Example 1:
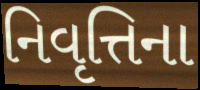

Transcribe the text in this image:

નિવૃત્તિના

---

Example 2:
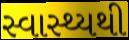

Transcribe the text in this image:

સ્વાસ્થ્યથી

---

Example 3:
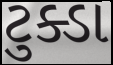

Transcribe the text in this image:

ટુક્ડા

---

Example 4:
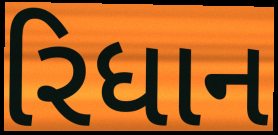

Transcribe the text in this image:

રિધાન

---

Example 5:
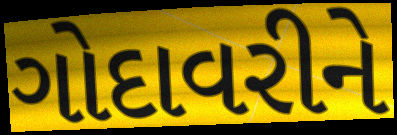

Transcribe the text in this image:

ગોદાવરીને